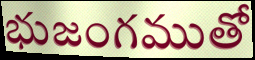
భుజంగముతో